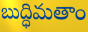
బుద్ధిమతాం